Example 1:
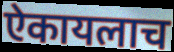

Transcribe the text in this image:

ऐकायलाच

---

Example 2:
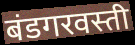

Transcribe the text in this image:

बंडगरवस्ती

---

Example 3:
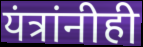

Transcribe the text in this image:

यंत्रांनीही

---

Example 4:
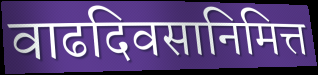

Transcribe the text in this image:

वाढदिवसानिमित्त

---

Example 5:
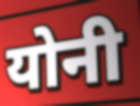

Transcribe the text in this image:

योनी